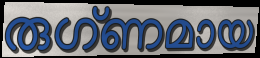
രുഗ്ണമായ